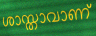
ശാസ്താവാണ്